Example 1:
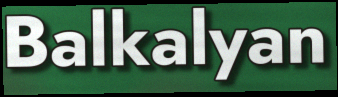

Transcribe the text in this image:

Balkalyan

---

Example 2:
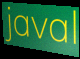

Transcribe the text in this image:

javal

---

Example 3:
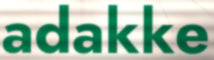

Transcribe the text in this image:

adakke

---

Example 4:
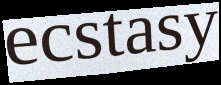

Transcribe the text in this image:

ecstasy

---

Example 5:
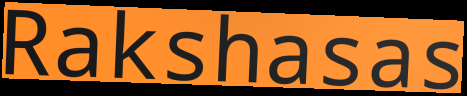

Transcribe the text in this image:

Rakshasas